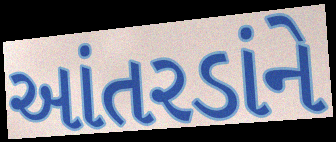
આંતરડાંને